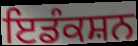
ਇਡੰਕਸ਼ਨ